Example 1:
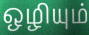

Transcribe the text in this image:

ஒழியும்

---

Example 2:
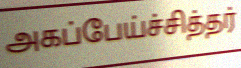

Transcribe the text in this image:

அகப்பேய்ச்சித்தர்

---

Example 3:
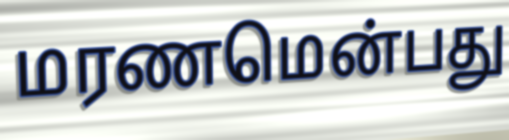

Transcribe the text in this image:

மரணமென்பது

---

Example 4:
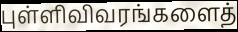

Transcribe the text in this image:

புள்ளிவிவரங்களைத்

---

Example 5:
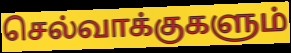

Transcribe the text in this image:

செல்வாக்குகளும்